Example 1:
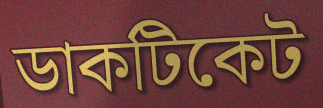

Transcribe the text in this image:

ডাকটিকেট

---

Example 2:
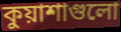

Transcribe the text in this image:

কুয়াশাগুলো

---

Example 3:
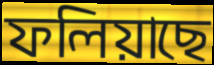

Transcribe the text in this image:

ফলিয়াছে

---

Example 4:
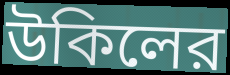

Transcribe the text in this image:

উকিলের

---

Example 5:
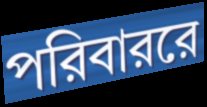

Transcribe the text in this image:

পরিবাররে